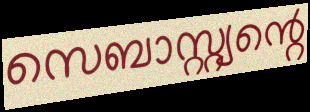
സെബാസ്റ്റ്യന്റെ